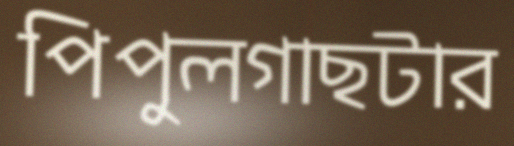
পিপুলগাছটার